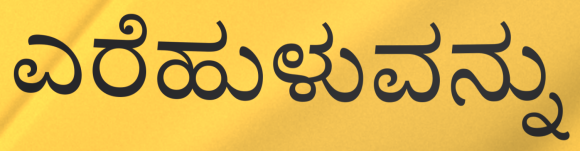
ಎರೆಹುಳುವನ್ನು